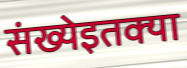
संख्येइतक्या